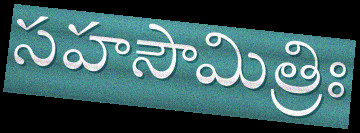
సహసౌమిత్రిః